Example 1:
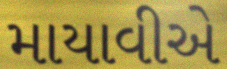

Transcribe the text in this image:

માયાવીએ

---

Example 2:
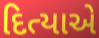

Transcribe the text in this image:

દિત્યાએ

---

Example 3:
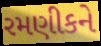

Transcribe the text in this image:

રમણીકને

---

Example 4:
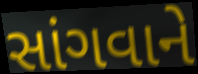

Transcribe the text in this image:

સાંગવાને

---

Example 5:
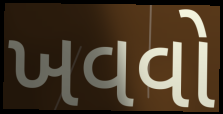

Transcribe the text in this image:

ખવવો